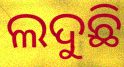
ଲଦୁଛି